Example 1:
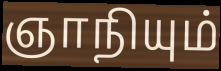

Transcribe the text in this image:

ஞாநியும்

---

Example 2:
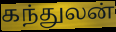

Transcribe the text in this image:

கந்துலன்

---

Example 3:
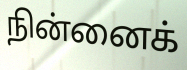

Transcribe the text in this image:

நின்னைக்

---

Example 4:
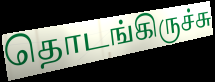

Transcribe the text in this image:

தொடங்கிருச்சு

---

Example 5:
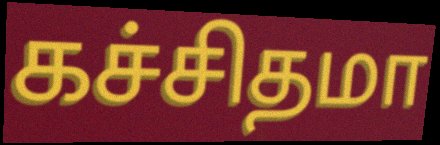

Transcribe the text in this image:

கச்சிதமா